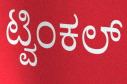
ಟ್ವಿಂಕಲ್